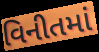
વિનીતમાં